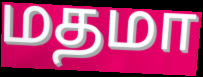
மதமா